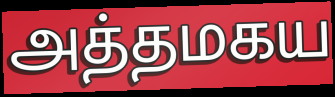
அத்தமகய